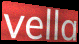
vella